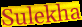
Sulekha